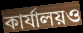
কার্যালয়ও